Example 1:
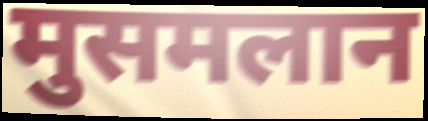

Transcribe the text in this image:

मुसमलान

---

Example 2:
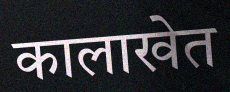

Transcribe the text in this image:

कालाखेत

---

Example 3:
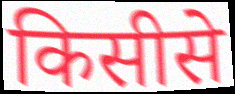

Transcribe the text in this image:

किसीसे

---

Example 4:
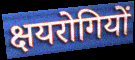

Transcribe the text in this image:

क्षयरोगियों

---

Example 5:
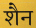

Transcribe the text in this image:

शैन